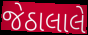
જેઠાલાલે